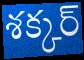
శక్కర్